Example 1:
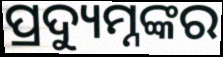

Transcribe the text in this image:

ପ୍ରଦ୍ୟୁମ୍ନଙ୍କର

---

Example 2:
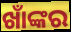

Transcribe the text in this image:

ଖାଁଙ୍କର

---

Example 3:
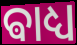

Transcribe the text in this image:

ଵାଧ୍ୟ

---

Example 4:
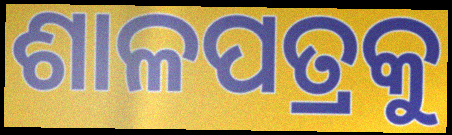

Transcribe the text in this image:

ଶାଳପତ୍ରକୁ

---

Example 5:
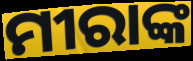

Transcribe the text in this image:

ମୀରାଙ୍କ